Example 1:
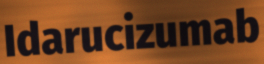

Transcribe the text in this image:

Idarucizumab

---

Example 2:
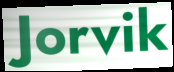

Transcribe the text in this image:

Jorvik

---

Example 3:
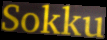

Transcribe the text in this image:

Sokku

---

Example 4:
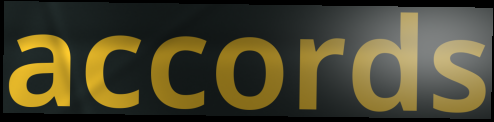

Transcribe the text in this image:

accords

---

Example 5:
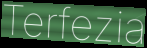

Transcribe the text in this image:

Terfezia